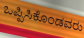
ಒಪ್ಪಿಸಿಕೊಂಡವರು